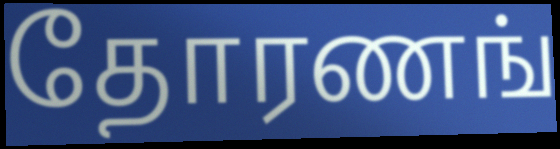
தோரணங்